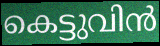
കെട്ടുവിൻ